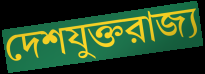
দেশযুক্তরাজ্য